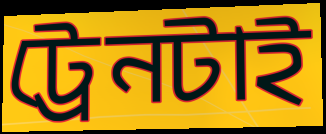
ট্রেনটাই